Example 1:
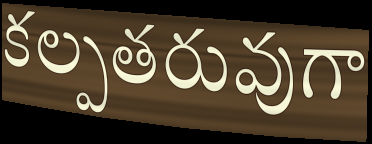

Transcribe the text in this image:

కల్పతరువుగా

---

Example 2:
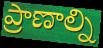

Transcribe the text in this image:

ప్రాణాల్ని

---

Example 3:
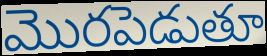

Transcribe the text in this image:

మొరపెడుతూ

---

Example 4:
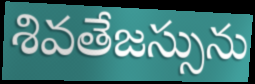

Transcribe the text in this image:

శివతేజస్సును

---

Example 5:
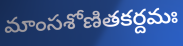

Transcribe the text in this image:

మాంసశోణితకర్దమః